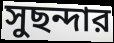
সুছন্দার